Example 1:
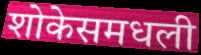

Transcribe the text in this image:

शोकेसमधली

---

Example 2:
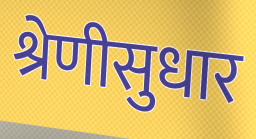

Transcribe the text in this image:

श्रेणीसुधार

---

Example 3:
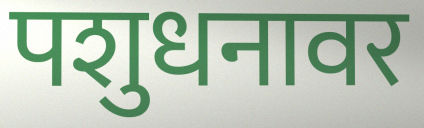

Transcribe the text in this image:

पशुधनावर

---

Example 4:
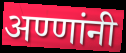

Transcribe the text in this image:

अण्णांनी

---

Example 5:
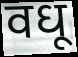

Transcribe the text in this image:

वधू